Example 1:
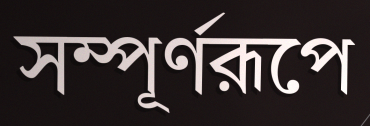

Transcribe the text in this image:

সম্পূর্ণরূপে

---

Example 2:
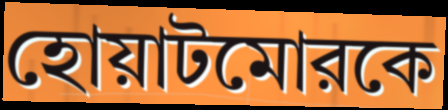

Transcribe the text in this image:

হোয়াটমোরকে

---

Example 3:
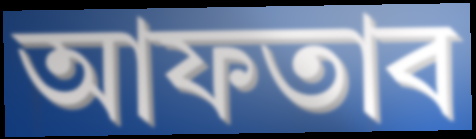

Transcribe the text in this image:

আফতাব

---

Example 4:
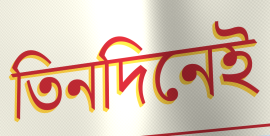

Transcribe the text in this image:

তিনদিনেই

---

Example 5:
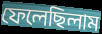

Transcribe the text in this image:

ফেলেছিলাম